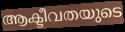
ആക്ടീവതയുടെ